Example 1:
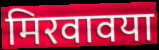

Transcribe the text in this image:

मिरवावया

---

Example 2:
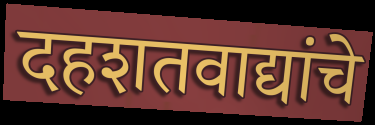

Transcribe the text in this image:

दहशतवाद्यांचे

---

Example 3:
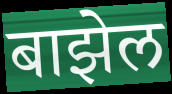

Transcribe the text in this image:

बाझेल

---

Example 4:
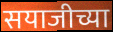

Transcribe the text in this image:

सयाजीच्या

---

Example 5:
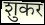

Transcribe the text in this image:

शुकर